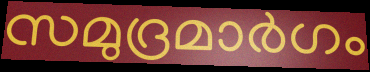
സമുദ്രമാർഗം